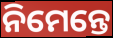
ନିମେନ୍ତେ